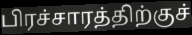
பிரச்சாரத்திற்குச்